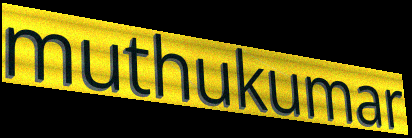
muthukumar